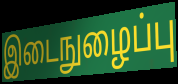
இடைநுழைப்பு